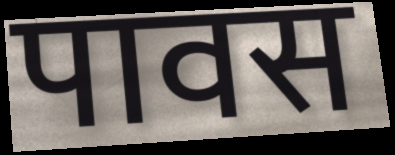
पावस